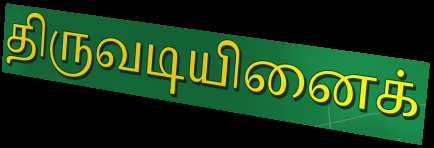
திருவடியினைக்